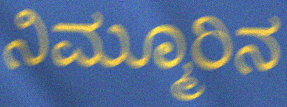
ನಿಮ್ಮೂರಿನ